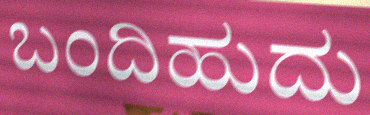
ಬಂದಿಹುದು